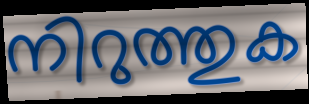
നിറുത്തുക